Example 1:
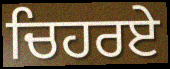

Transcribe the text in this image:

ਚਿਹਰਏ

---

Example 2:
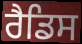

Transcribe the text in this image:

ਰੈਡਿਸ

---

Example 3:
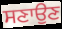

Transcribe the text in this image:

ਸਣਾਉਣ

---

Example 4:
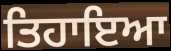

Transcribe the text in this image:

ਤਿਹਾਇਆ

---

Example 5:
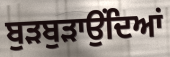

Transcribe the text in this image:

ਬੁੜਬੁੜਾਉਂਦਿਆਂ